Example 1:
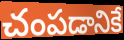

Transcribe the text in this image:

చంపడానికే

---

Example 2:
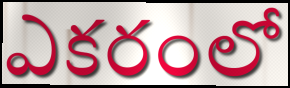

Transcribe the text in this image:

ఎకరంలో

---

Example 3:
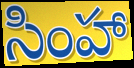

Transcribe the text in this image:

సింహా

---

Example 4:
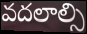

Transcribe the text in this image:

వదలాల్సి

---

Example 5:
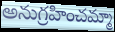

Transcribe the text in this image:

అనుగ్రహించమ్మా